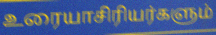
உரையாசிரியர்களும்